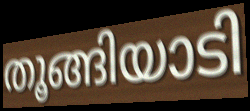
തൂങ്ങിയാടി